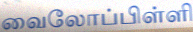
வைலோப்பிள்ளி